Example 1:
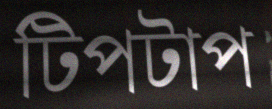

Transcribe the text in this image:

টিপটাপ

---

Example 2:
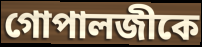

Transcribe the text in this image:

গোপালজীকে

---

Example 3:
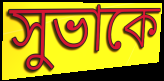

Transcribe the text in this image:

সুভাকে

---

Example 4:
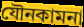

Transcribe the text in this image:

যৌনকামনা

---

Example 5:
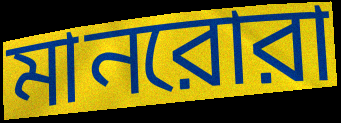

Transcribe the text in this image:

মানরোরা